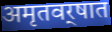
अमृतवर्षात